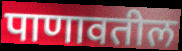
पाणावतील